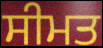
ਸੀਮਤ